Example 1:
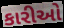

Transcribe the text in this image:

કારીઓ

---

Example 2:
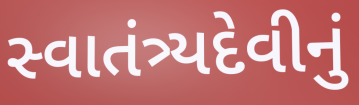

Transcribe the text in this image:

સ્વાતંત્ર્યદેવીનું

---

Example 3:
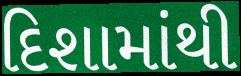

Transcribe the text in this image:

દિશામાંથી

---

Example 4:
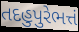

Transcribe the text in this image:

તદહુપુરેભત્તં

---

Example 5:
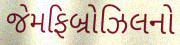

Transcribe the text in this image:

જેમફિબ્રોઝિલનો